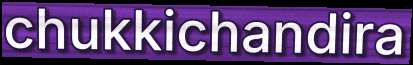
chukkichandira